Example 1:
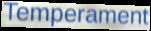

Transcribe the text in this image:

Temperament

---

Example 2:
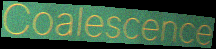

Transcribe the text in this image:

Coalescence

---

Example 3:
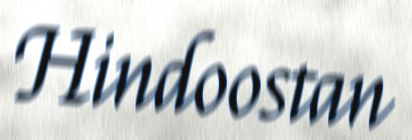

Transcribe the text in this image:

Hindoostan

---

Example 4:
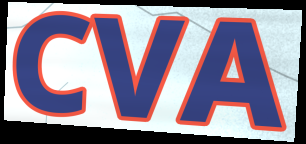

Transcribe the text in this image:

CVA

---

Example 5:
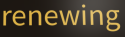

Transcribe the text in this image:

renewing